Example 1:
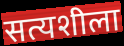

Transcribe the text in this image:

सत्यशीला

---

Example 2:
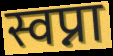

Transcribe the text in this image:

स्वप्ना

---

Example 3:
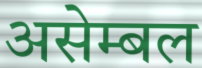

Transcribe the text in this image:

असेम्बल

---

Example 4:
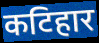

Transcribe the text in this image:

कटिहार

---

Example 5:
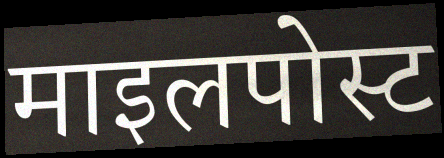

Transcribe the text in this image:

माइलपोस्ट